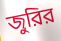
জুরির